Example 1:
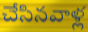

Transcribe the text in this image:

చేసినవాళ్ల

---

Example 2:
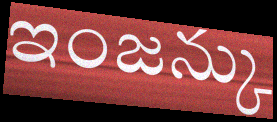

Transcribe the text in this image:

ఇంజన్కు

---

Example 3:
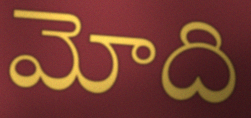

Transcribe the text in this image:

మోది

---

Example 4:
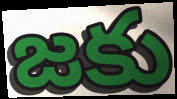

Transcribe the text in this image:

జకు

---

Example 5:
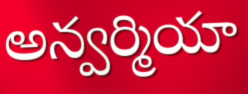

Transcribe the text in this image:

అన్వర్మియా